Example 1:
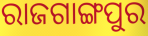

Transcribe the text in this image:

ରାଜଗାଙ୍ଗପୁର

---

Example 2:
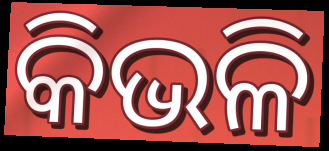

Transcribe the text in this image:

କିଭଳି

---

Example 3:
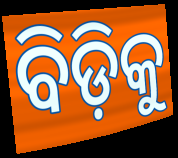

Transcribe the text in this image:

ବିଡ଼ିକୁ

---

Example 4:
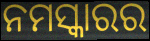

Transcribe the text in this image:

ନମସ୍କାରର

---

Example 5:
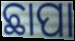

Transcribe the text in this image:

ଛାପା